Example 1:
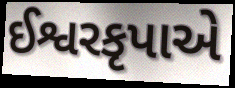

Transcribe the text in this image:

ઈશ્વરકૃપાએ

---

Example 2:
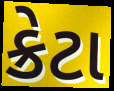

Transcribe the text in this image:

ક્રેટા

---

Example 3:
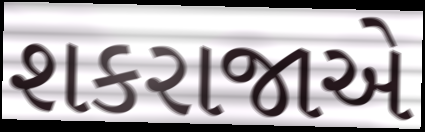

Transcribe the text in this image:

શકરાજાએ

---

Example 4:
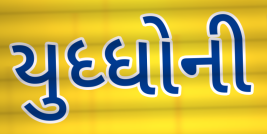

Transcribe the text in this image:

યુધ્ધોની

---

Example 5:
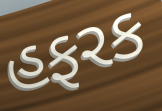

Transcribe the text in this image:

હફરક